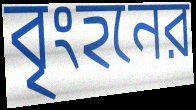
বৃংহনের